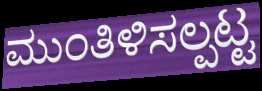
ಮುಂತಿಳಿಸಲ್ಪಟ್ಟ